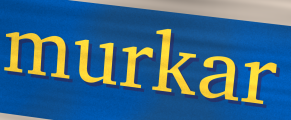
murkar